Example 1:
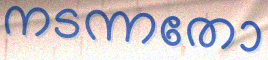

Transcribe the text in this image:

നടന്നതോ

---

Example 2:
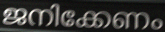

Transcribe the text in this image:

ജനിക്കേണം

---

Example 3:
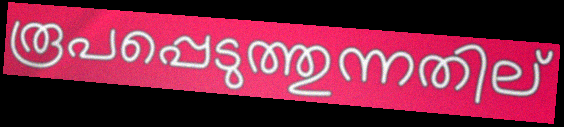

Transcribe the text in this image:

രൂപപ്പെടുത്തുന്നതില്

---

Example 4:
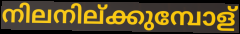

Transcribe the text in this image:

നിലനില്ക്കുമ്പോള്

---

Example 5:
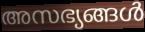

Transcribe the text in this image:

അസഭ്യങ്ങൾ